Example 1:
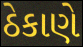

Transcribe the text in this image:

ઠેકાણે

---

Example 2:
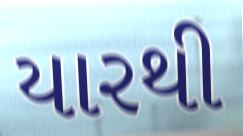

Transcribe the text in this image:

યારથી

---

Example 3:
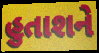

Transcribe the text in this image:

હુતાશને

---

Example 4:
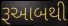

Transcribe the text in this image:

રૂઆબથી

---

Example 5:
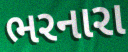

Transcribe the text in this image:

ભરનારા